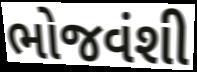
ભોજવંશી